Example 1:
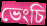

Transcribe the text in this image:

ভেংচি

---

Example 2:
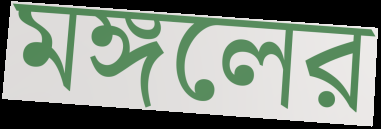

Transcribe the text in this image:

মঙ্গলের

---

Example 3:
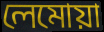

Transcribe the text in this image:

লেমোয়া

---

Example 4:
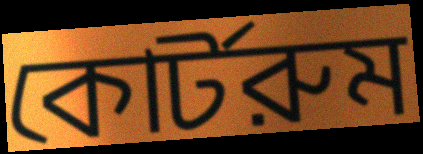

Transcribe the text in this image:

কোর্টরুম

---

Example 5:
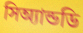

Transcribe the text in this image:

সিঅ্যান্ডডি